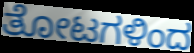
ತೋಟಗಳಿಂದ